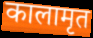
कालामृत